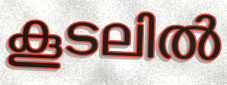
കൂടലിൽ